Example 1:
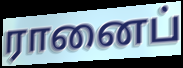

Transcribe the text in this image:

ரானைப்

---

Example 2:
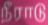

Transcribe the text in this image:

நீராடு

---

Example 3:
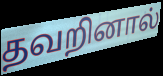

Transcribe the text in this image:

தவறினால்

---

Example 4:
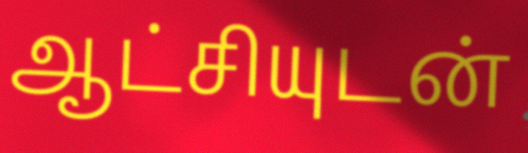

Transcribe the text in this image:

ஆட்சியுடன்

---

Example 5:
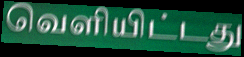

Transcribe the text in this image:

வெளியிட்டது